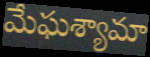
మేఘశ్యామా